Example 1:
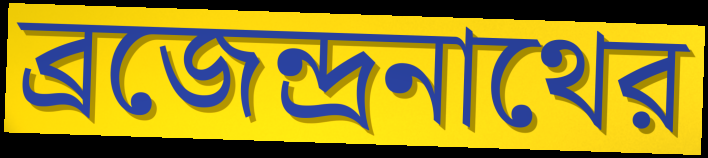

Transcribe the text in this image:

ব্রজেন্দ্রনাথের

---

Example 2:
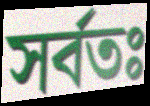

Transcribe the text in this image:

সর্বতঃ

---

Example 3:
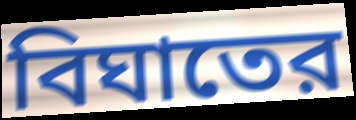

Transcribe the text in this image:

বিঘাতের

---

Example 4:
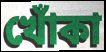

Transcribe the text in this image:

খোঁকা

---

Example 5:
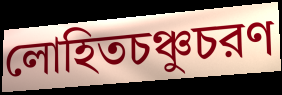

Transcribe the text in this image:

লোহিতচঞ্চুচরণ